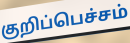
குறிப்பெச்சம்